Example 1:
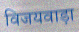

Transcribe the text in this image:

विजयवाड़ा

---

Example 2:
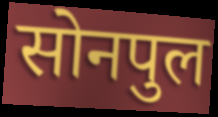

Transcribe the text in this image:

सोनपुल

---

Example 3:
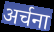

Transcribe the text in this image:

अर्चना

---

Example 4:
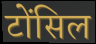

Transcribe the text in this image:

टोंसिल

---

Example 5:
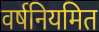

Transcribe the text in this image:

वर्षनियमित